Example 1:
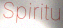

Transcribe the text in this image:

Spiritu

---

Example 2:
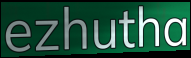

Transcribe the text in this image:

ezhutha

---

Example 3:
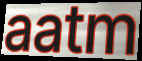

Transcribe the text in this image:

aatm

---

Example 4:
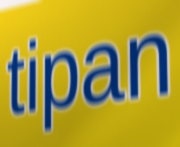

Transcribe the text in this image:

tipan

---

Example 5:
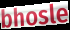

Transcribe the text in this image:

bhosle